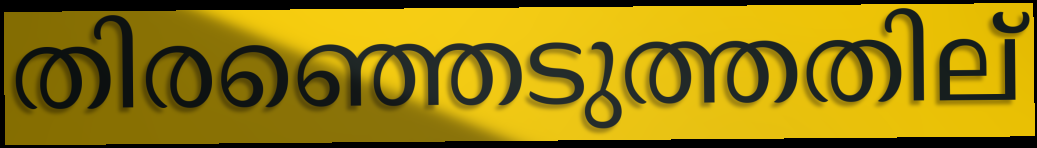
തിരഞ്ഞെടുത്തതില്